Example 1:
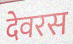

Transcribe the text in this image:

देवरस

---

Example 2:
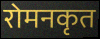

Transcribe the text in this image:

रोमनकृत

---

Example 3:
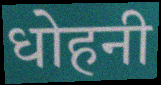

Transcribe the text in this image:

धोहनी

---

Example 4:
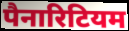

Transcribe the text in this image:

पैनारिटियम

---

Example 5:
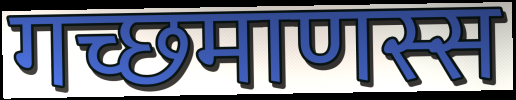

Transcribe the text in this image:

गच्छमाणस्स